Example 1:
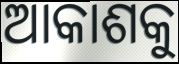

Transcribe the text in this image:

ଆକାଶକୁ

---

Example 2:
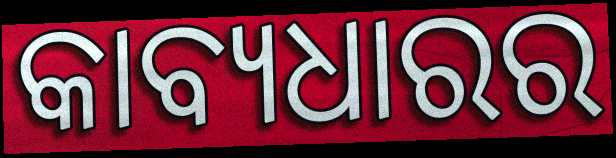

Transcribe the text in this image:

କାବ୍ୟଧାରର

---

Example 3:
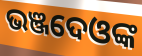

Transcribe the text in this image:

ଭଞ୍ଜଦେଓଙ୍କ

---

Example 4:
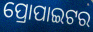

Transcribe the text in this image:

ପ୍ରୋପାଇଟର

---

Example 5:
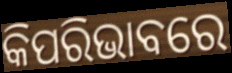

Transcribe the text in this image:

କିପରିଭାବରେ